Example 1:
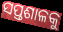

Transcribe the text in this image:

ସପ୍ତଶାଳକୁ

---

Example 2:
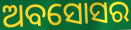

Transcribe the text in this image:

ଅବସୋସର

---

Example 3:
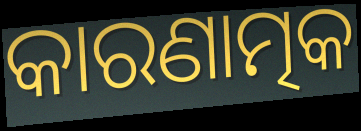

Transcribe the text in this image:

କାରଣାତ୍ମକ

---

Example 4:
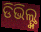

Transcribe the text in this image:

ଡିଭିଲ୍ଙ୍କ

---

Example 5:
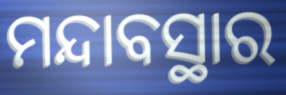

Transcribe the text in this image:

ମନ୍ଦାବସ୍ଥାର